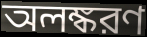
অলঙ্করণ